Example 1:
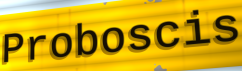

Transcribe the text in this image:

Proboscis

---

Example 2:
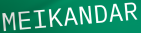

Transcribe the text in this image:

MEIKANDAR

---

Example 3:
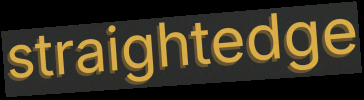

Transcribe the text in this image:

straightedge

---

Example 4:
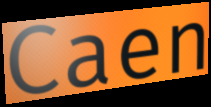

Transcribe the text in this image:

Caen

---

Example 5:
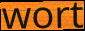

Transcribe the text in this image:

wort